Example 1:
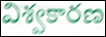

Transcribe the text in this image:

విశ్వకారణ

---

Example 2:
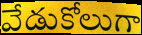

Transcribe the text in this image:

వేడుకోలుగా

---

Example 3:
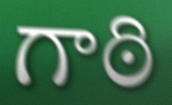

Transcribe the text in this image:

గాఠి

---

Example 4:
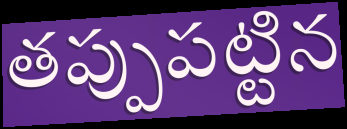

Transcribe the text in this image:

తప్పుపట్టిన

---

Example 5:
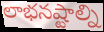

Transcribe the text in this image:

లాభనష్టాల్ని